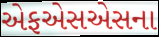
એફએસએસના